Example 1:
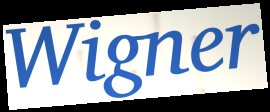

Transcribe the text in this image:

Wigner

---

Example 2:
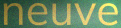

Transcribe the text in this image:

neuve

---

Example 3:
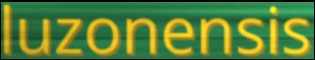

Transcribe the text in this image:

luzonensis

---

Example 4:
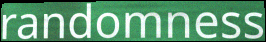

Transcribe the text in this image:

randomness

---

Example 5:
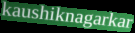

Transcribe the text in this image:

kaushiknagarkar